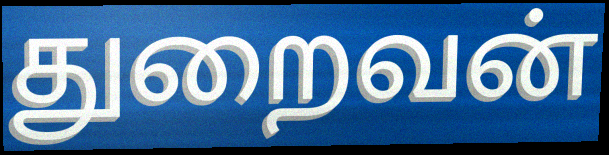
துறைவன்